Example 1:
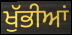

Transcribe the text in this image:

ਖੁੱਭੀਆਂ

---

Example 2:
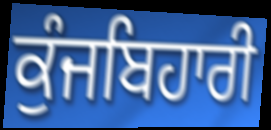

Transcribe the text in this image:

ਕੁੰਜਬਿਹਾਰੀ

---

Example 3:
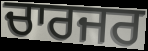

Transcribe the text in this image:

ਚਾਰਜਰ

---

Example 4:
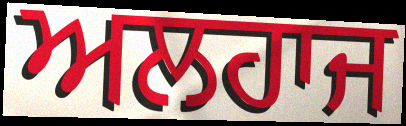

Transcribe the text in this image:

ਅਲਹਾਜ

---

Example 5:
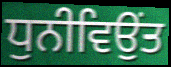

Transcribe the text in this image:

ਧੁਨੀਵਿਉਂਤ